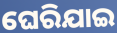
ଘେରିଯାଇ